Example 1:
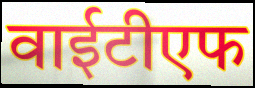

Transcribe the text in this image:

वाईटीएफ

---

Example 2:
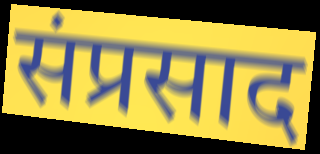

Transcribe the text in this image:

संप्रसाद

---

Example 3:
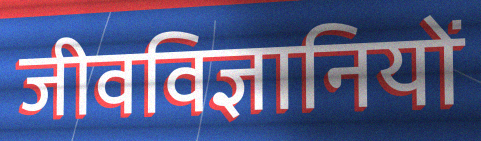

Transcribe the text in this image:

जीवविज्ञानियों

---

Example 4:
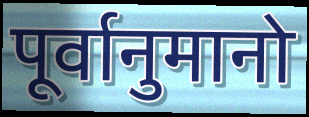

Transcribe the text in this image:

पूर्वानुमानो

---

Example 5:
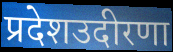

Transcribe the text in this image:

प्रदेशउदीरणा